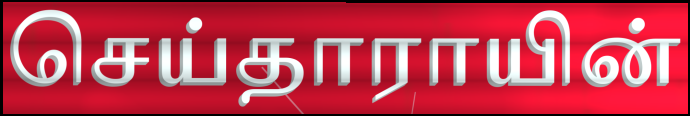
செய்தாராயின்